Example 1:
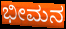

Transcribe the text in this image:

ಭೀಮನ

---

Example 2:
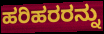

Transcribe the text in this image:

ಹರಿಹರರನ್ನು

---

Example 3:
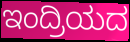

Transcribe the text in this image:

ಇಂದ್ರಿಯದ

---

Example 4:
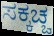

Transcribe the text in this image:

ಸಕ್ಕಚ್ಚ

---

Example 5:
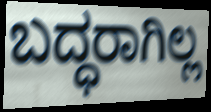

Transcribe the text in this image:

ಬದ್ಧರಾಗಿಲ್ಲ